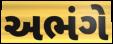
અભંગે